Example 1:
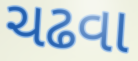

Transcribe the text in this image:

ચઢવા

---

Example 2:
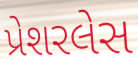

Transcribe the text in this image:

પ્રેશરલેસ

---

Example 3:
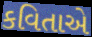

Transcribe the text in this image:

કવિતાએ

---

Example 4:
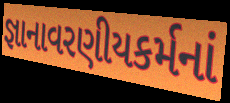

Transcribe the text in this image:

જ્ઞાનાવરણીયકર્મનાં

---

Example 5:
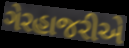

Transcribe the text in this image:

ગેરહાજરીએ